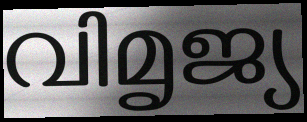
വിമൃജ്യ